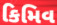
કિમિવ